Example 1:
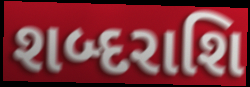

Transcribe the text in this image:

શબ્દરાશિ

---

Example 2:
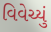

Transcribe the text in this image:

વિવેચ્યું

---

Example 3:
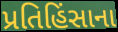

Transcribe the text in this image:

પ્રતિહિંસાના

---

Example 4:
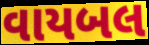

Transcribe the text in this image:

વાયબલ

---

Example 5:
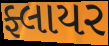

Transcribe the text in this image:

ફ્લાયર